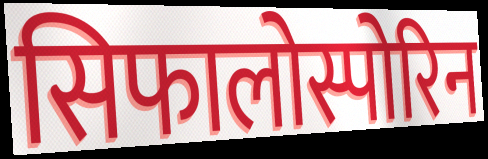
सिफालोस्पोरिन